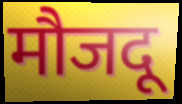
मौजदू